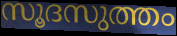
സൂദസുത്തം